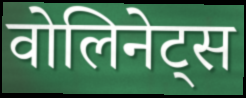
वोलिनेट्स